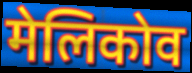
मेलिकोव